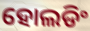
ହୋଲଡିଂ